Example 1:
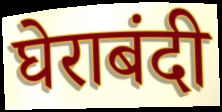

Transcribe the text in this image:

घेराबंदी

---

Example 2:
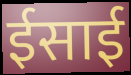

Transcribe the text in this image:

ईसाई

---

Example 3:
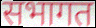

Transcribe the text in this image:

सभागत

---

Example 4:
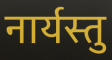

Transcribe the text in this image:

नार्यस्तु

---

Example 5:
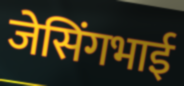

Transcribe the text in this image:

जेसिंगभाई